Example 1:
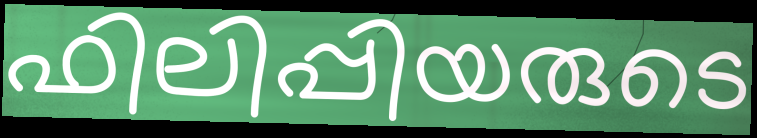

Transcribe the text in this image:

ഫിലിപ്പിയരുടെ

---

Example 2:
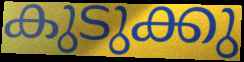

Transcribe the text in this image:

കുടുക്കു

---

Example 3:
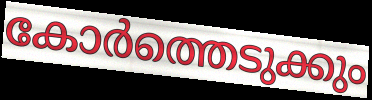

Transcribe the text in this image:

കോർത്തെടുക്കും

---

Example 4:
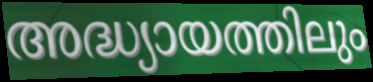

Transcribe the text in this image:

അദ്ധ്യായത്തിലും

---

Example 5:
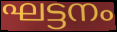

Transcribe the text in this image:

ഘട്ടനം